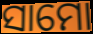
ସାମୋ